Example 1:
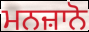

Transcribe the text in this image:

ਮਨਜ਼ਾਨੋ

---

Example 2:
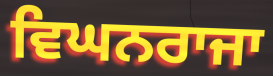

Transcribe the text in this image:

ਵਿਘਨਰਾਜਾ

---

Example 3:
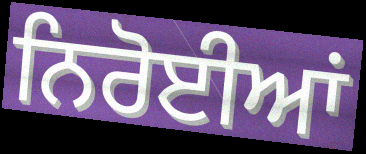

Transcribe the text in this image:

ਨਿਰੋਈਆਂ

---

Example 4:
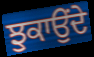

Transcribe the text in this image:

ਝੁਕਾਉੰਦੇ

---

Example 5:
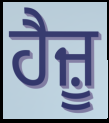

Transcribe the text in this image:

ਹੈਜ਼ੂ